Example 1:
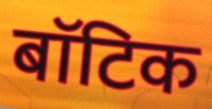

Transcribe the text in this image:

बॉटिक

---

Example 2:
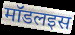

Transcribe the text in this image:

मॉडलइस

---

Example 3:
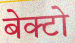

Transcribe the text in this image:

बेक्टो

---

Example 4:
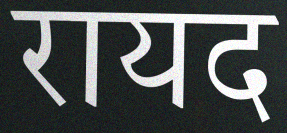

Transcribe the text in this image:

रायद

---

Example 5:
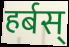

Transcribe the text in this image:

हर्बस्